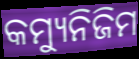
କମ୍ୟୁନିଜିମ